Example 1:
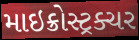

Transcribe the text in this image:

માઇક્રોસ્ટ્રક્ચર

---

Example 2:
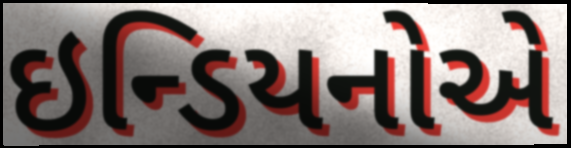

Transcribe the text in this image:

ઇન્ડિયનોએ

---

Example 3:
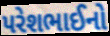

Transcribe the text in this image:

પરેશભાઈનો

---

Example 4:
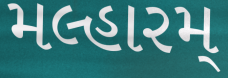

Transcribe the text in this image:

મલ્હારમ્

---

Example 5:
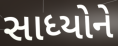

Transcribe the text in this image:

સાધ્યોને